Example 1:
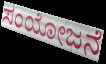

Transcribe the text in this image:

ಸಂಯೋಜನೆ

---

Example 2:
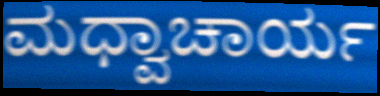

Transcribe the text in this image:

ಮಧ್ವಾಚಾರ್ಯ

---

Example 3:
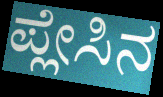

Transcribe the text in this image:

ಪ್ಲೇಸಿನ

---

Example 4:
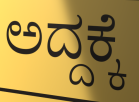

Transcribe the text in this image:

ಅದ್ದಕ್ಕೆ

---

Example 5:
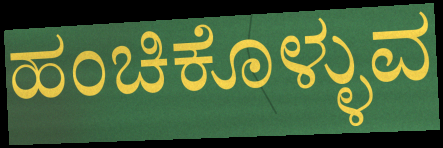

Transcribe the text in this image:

ಹಂಚಿಕೊಳ್ಳುವ